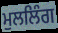
ਮੁਲਲਿੰਗ